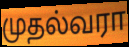
முதல்வரா